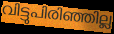
വിട്ടുപിരിഞ്ഞില്ല